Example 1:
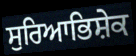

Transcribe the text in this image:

ਸੁਰਿਆਭਿਸ਼ੇਕ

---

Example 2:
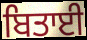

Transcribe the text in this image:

ਬਿਤਾਈ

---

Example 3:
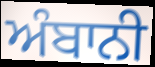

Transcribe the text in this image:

ਅੰਬਾਨੀ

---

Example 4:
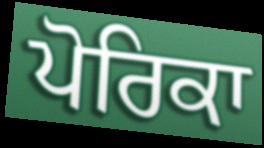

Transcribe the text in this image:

ਪੋਰਿਕਾ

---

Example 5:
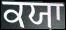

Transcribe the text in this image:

ਕਯਾ